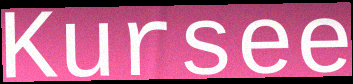
Kursee